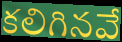
కలిగినవే